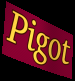
Pigot